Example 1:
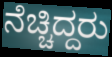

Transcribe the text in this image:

ನೆಚ್ಚಿದ್ದರು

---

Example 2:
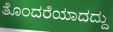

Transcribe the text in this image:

ತೊಂದರೆಯಾದದ್ದು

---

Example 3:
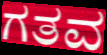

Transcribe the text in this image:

ಗತವ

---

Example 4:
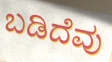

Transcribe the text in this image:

ಬಡಿದೆವು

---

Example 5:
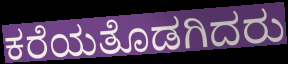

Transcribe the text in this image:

ಕರೆಯತೊಡಗಿದರು